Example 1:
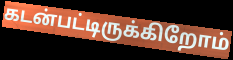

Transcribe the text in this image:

கடன்பட்டிருக்கிறோம்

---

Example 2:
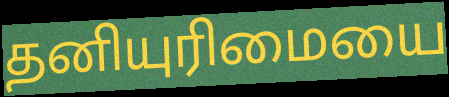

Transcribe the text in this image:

தனியுரிமையை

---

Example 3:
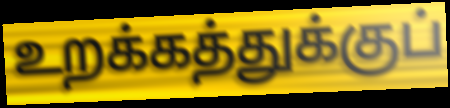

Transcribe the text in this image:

உறக்கத்துக்குப்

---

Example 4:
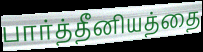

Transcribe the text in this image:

பார்த்தீனியத்தை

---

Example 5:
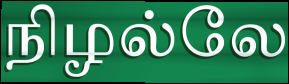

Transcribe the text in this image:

நிழல்லே